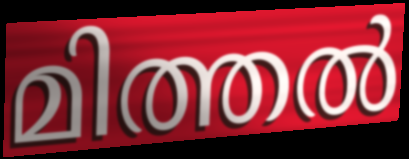
മിത്തൽ